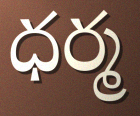
ధర్మ